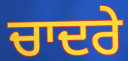
ਚਾਦਰੇ